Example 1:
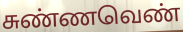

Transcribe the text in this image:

சுண்ணவெண்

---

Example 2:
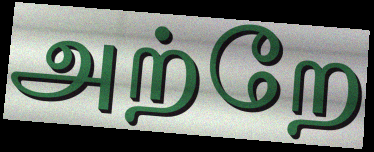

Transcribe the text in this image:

அற்றே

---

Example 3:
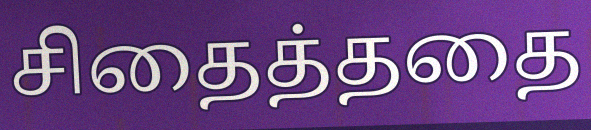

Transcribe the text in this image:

சிதைத்ததை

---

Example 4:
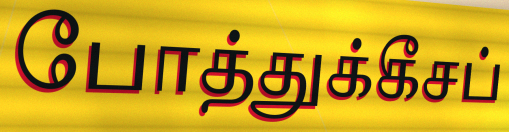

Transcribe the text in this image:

போத்துக்கீசப்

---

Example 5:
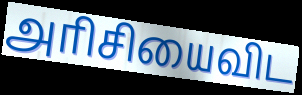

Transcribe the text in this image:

அரிசியைவிட